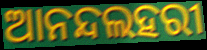
ଆନନ୍ଦଲହରୀ